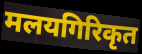
मलयगिरिकृत